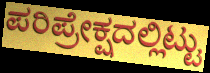
ಪರಿಪ್ರೇಕ್ಷದಲ್ಲಿಟ್ಟು